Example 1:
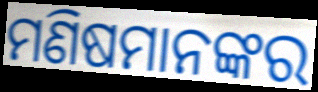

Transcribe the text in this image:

ମଣିଷମାନଙ୍କର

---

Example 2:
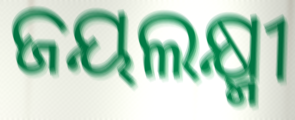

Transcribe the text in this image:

ଜୟଲକ୍ଷ୍ମୀ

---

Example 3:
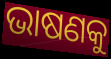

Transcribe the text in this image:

ଭାଷଣକୁ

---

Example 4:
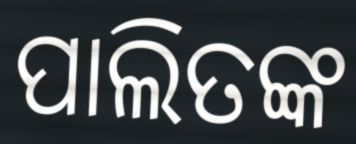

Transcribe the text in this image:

ପାଲିତଙ୍କ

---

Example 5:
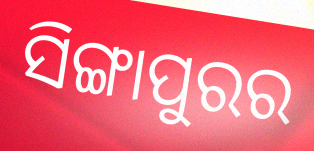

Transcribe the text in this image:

ସିଙ୍ଗାପୁରର